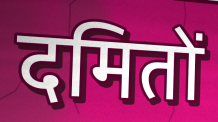
दमितों